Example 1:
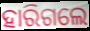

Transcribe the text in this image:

ହାରିଗଲେ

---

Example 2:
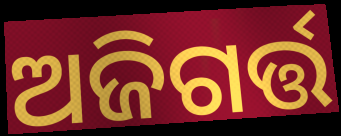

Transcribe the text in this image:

ଅଜିଗର୍ତ୍ତ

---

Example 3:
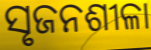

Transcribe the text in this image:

ସୃଜନଶୀଳା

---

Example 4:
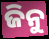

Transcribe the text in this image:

ଜିନୁ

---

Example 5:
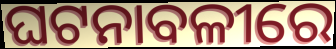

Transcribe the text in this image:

ଘଟନାବଳୀରେ